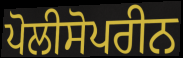
ਪੋਲੀਸੋਪਰੀਨ